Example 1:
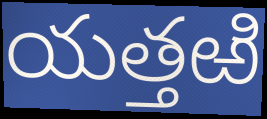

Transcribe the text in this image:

యత్తఱి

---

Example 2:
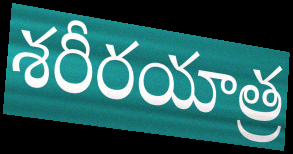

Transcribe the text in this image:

శరీరయాత్ర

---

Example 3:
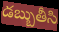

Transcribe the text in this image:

డబ్బుతీసి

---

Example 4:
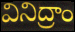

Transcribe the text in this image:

వినిద్రాం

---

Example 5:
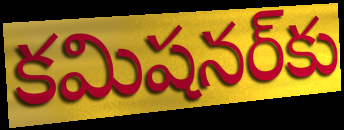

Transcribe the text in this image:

కమిషనర్‌కు